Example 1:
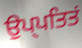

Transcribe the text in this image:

ਉਪ੍ਪਤਿਤਂ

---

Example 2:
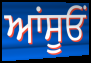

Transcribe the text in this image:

ਆਂਸੂਓਂ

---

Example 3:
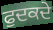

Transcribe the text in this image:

ਫੁਦਕਦੇ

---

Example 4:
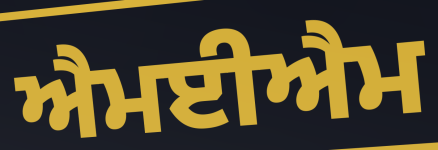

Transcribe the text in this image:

ਐਮਈਐਮ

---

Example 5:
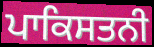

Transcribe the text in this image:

ਪਾਕਿਸਤਨੀ